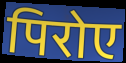
पिरोए